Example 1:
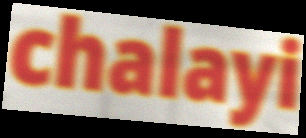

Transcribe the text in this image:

chalayi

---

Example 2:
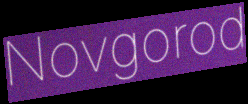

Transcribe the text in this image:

Novgorod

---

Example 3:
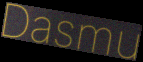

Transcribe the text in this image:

Dasmu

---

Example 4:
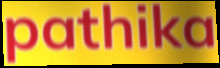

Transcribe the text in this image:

pathika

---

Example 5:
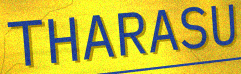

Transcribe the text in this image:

THARASU